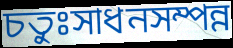
চতুঃসাধনসম্পন্ন